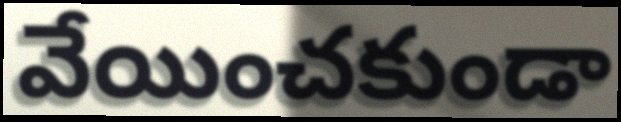
వేయించకుండా